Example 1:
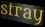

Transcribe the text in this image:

stray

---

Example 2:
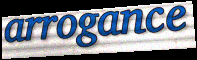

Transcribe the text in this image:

arrogance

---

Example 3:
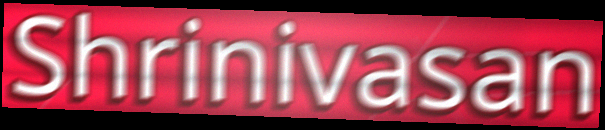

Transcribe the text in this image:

Shrinivasan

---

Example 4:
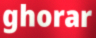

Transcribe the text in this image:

ghorar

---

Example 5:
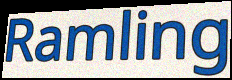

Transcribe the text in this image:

Ramling